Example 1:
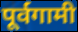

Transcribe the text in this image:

पूर्वगामी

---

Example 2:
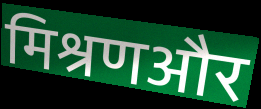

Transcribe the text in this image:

मिश्रणऔर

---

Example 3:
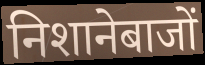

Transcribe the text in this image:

निशानेबाजों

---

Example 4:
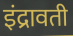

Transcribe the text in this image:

इंद्रावती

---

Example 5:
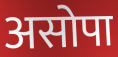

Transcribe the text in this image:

असोपा